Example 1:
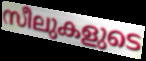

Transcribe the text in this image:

സീലുകളുടെ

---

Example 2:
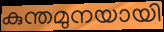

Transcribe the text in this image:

കുന്തമുനയായി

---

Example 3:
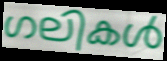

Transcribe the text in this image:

ഗലികൾ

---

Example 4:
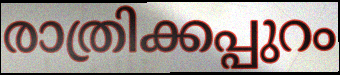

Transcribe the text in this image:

രാത്രിക്കപ്പുറം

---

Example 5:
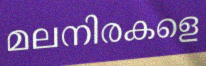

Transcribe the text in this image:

മലനിരകളെ